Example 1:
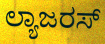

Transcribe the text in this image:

ಲ್ಯಾಜರಸ್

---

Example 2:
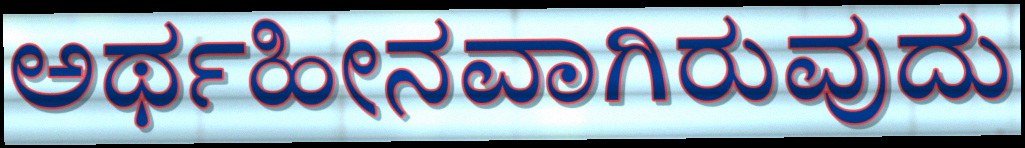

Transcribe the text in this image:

ಅರ್ಥಹೀನವಾಗಿರುವುದು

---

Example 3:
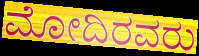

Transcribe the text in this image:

ಮೋದಿರವರು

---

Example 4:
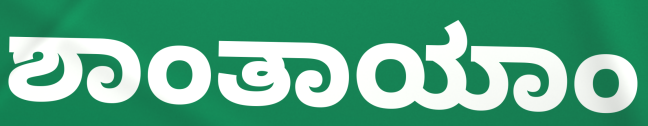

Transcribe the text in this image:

ಶಾಂತಾಯಾಂ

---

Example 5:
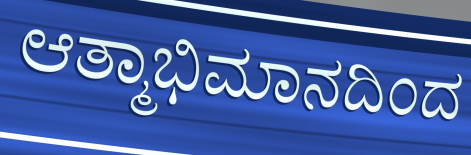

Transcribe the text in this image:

ಆತ್ಮಾಭಿಮಾನದಿಂದ